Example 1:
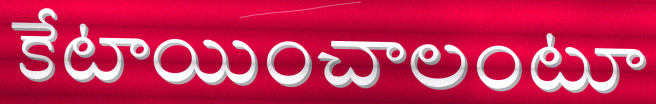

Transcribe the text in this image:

కేటాయించాలంటూ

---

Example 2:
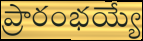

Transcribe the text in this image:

ప్రారంభయ్యే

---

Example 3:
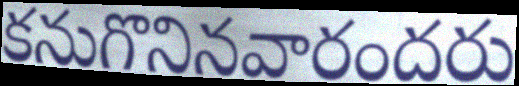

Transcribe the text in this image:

కనుగొనినవారందరు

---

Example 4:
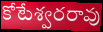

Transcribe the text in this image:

కోటేశ్వరరావు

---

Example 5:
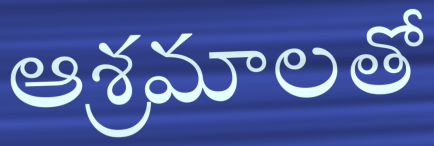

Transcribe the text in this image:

ఆశ్రమాలతో